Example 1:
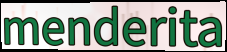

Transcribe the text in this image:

menderita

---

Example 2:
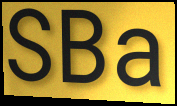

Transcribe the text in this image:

SBa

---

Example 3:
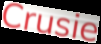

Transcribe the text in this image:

Crusie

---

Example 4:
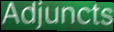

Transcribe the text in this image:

Adjuncts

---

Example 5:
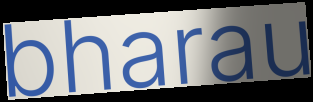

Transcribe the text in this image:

bharau